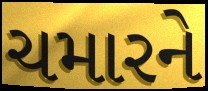
ચમારને